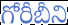
గోరీబీని